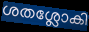
ശതശ്ലോകി